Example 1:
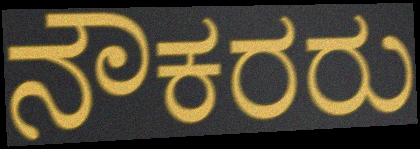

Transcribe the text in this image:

ನೌಕರರು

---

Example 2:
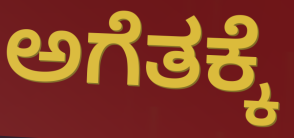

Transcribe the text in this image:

ಅಗೆತಕ್ಕೆ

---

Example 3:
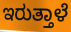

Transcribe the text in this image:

ಇರುತ್ತಾಳೆ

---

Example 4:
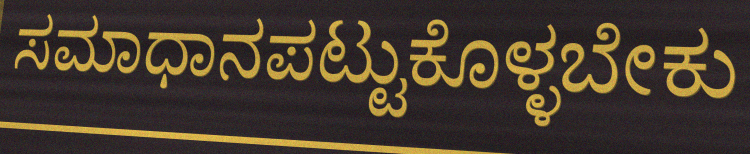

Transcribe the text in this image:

ಸಮಾಧಾನಪಟ್ಟುಕೊಳ್ಳಬೇಕು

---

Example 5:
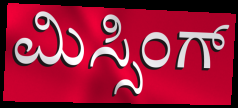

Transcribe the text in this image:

ಮಿಸ್ಸಿಂಗ್